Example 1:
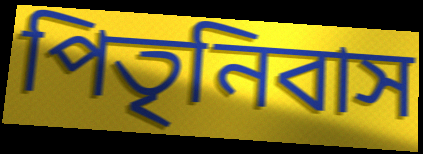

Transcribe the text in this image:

পিতৃনিবাস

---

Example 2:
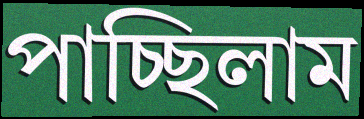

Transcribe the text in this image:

পাচ্ছিলাম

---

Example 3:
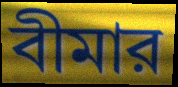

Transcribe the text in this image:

বীমার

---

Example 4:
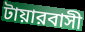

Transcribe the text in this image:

টায়ারবাসী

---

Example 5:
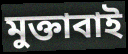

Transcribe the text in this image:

মুক্তাবাই